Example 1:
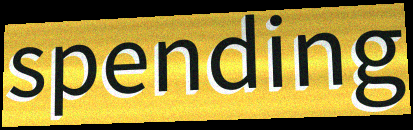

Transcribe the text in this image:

spending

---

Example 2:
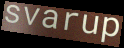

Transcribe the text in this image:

svarup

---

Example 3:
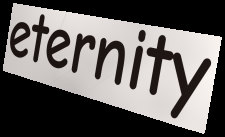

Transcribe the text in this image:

eternity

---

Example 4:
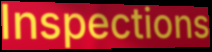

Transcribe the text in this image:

Inspections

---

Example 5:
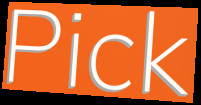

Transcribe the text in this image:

Pick